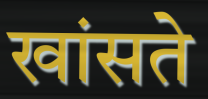
खांसते